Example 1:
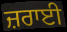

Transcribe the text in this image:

ਜ਼ਰਾਈ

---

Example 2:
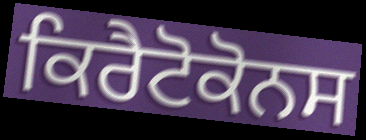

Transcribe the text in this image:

ਕਿਰੈਟੋਕੋਨਸ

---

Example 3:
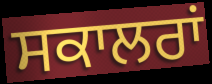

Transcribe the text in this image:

ਸਕਾਲਰਾਂ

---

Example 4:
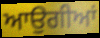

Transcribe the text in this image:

ਆਉਗੀਆਂ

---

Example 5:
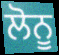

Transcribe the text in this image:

ਲੋਨੂ